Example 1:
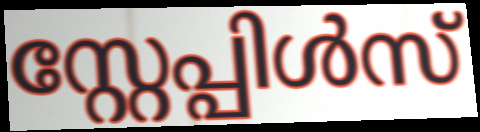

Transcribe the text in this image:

സ്റ്റേപ്പിൾസ്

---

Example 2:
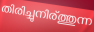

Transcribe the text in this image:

തിരിച്ചുനിര്ത്തുന്ന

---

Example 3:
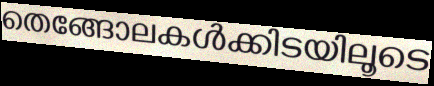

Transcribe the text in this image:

തെങ്ങോലകൾക്കിടയിലൂടെ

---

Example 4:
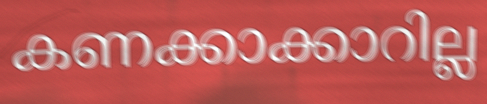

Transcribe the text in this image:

കണക്കാക്കാറില്ല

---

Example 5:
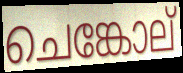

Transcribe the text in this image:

ചെങ്കോല്